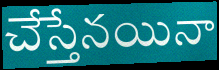
చేస్తేనయినా